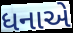
ધનાએ